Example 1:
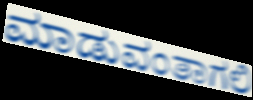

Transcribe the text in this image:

ಮಾಡುವಂತಾಗಲಿ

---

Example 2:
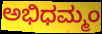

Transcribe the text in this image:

ಅಭಿಧಮ್ಮಂ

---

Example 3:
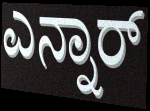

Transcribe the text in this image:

ಎನ್ನಾರ್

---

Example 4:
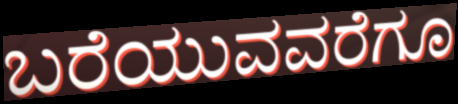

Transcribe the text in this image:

ಬರೆಯುವವರೆಗೂ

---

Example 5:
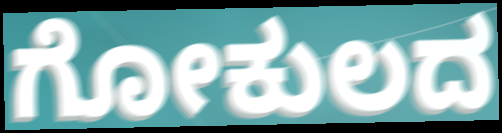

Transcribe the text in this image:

ಗೋಕುಲದ